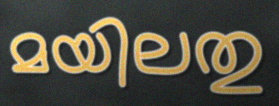
മയിലതു